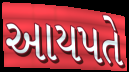
આયપતે